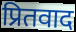
प्रितवाद